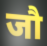
जौ